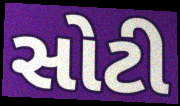
સોટી